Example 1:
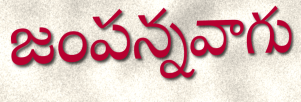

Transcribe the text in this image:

జంపన్నవాగు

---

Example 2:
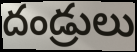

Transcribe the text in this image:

దండ్రులు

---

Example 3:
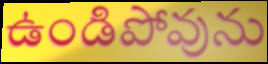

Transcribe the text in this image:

ఉండిపోవును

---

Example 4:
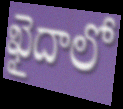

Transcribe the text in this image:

ఖైదాలో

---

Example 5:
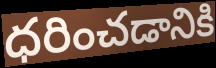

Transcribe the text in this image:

ధరించడానికి